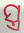
ସ୍ତ୍ର